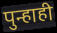
पुन्हाही